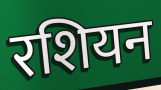
रशियन